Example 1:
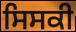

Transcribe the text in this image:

ਸਿਸਕੀ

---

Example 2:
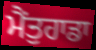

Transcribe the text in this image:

ਮੈਂਤੁਹਾਡਾ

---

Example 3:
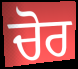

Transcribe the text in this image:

ਚੋਰ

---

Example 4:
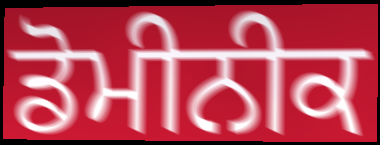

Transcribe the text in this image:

ਡੋਮੀਨੀਕ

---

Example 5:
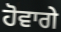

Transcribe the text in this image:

ਹੋਵਾਗੇ